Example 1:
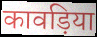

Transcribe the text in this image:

कावड़िया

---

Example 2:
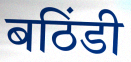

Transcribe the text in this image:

बठिंडी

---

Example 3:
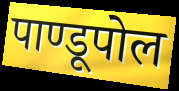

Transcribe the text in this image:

पाण्डूपोल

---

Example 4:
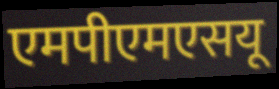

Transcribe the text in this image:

एमपीएमएसयू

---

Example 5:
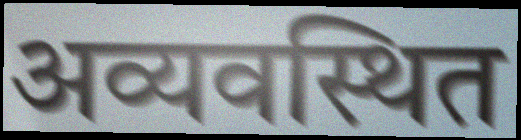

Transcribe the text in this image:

अव्यवस्थित